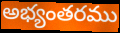
అభ్యంతరము